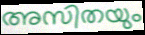
അസിതയും